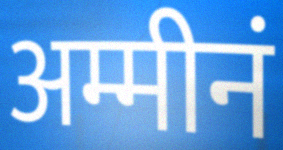
अम्मीनं